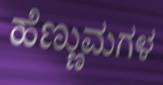
ಹೆಣ್ಣುಮಗಳ